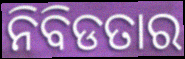
ନିବିଡତାର